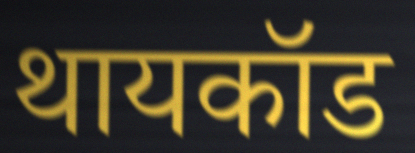
थायकॉड